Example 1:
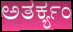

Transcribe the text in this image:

ಅತರ್ಕ್ಯಂ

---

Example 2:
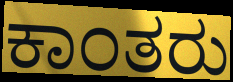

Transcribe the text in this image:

ಕಾಂತರು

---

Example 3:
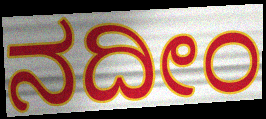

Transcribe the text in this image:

ನದೀಂ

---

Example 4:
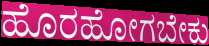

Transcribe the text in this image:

ಹೊರಹೋಗಬೇಕು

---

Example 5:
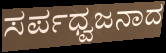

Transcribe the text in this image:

ಸರ್ಪಧ್ವಜನಾದ